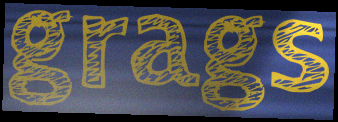
grags